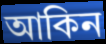
আকিন